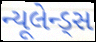
ન્યૂલેન્ડ્સ